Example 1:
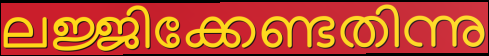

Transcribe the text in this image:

ലജ്ജിക്കേണ്ടതിന്നു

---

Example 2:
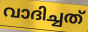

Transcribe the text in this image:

വാദിച്ചത്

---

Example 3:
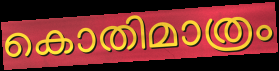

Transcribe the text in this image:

കൊതിമാത്രം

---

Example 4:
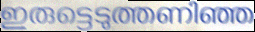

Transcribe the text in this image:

ഇരുട്ടെടുത്തണിഞ്ഞ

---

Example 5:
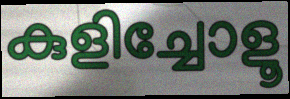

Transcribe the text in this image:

കുളിച്ചോളൂ